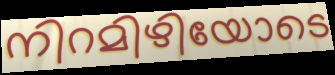
നിറമിഴിയോടെ